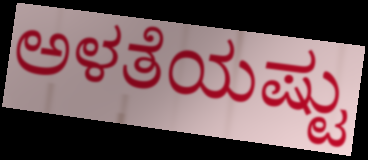
ಅಳತೆಯಷ್ಟು